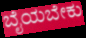
ಬೈಯಬೇಕು